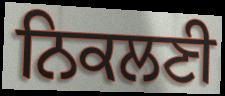
ਨਿਕਲਣੀ